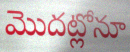
మొదట్లోనూ